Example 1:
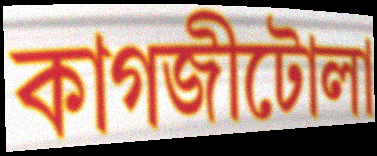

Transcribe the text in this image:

কাগজীটোলা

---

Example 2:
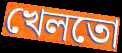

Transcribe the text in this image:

খেলতো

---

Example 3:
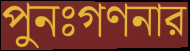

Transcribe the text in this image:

পুনঃগণনার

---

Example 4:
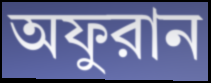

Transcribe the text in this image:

অফুরান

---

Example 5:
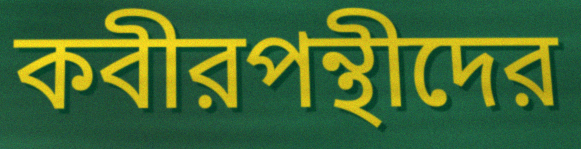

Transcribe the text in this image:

কবীরপন্থীদের